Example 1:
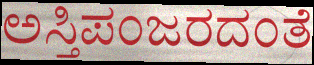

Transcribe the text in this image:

ಅಸ್ತಿಪಂಜರದಂತೆ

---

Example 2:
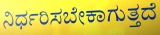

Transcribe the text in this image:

ನಿರ್ಧರಿಸಬೇಕಾಗುತ್ತದೆ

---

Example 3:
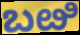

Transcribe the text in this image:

ಬೞಿ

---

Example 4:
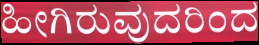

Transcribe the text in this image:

ಹೀಗಿರುವುದರಿಂದ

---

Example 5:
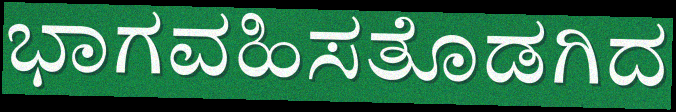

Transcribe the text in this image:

ಭಾಗವಹಿಸತೊಡಗಿದ